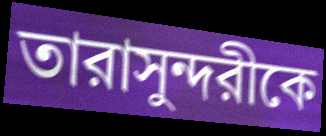
তারাসুন্দরীকে